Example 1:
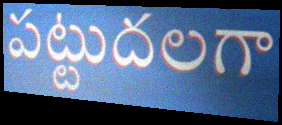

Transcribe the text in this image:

పట్టుదలగా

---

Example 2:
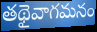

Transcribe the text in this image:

తథైవాగమనం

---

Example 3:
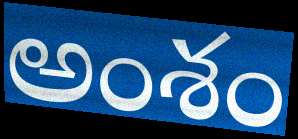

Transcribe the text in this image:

అంశం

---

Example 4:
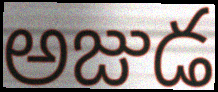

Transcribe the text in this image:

అజుడ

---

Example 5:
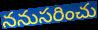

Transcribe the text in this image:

ననుసరించు